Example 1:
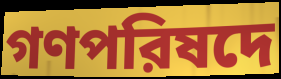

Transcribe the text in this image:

গণপরিষদে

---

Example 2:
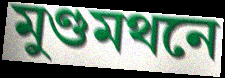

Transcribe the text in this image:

মুণ্ডমথনে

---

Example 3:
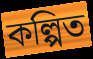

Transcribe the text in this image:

কল্পিত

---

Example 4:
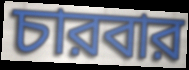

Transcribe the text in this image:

চারবার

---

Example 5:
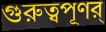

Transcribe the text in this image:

গুরুত্বপূণর্